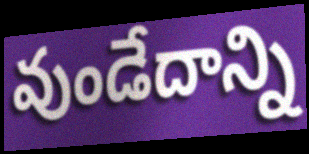
వుండేదాన్ని